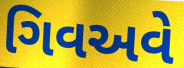
ગિવઅવે